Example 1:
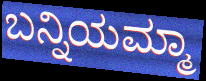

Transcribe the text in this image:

ಬನ್ನಿಯಮ್ಮಾ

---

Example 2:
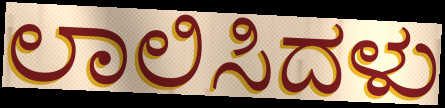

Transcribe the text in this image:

ಲಾಲಿಸಿದಳು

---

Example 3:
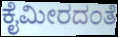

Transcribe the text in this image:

ಕೈಮೀರದಂತೆ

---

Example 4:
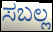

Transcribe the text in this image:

ಸಬಲ್ಲ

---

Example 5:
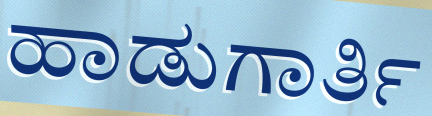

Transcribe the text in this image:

ಹಾಡುಗಾರ್ತಿ